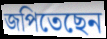
জপিতেছেন